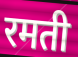
रमती